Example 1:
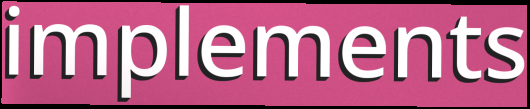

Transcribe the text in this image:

implements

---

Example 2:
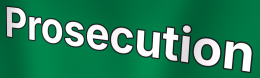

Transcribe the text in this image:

Prosecution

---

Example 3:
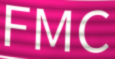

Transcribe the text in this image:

FMC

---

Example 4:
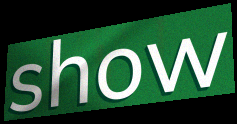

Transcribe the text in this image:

show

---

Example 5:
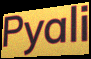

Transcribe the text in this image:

Pyali